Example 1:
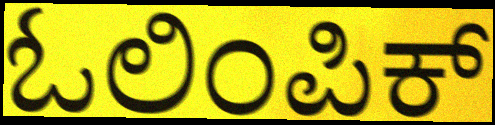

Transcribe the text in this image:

ಓಲಿಂಪಿಕ್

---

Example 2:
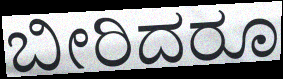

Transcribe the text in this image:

ಬೀರಿದರೂ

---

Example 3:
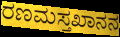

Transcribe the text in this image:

ರಣಮಸ್ತಖಾನನ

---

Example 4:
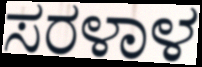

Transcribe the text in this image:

ಸರಳಾಳ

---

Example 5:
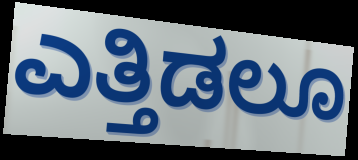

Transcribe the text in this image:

ಎತ್ತಿಡಲೂ